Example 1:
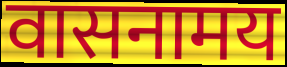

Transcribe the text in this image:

वासनामय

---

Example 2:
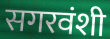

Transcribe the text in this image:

सगरवंशी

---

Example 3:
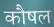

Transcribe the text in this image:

कौषल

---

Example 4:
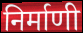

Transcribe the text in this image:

निर्माणी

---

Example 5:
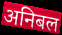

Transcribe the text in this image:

अनिबल